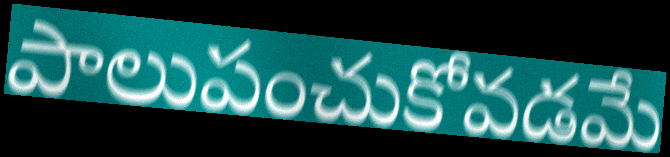
పాలుపంచుకోవడమే